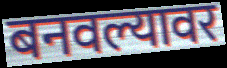
बनवल्यावर